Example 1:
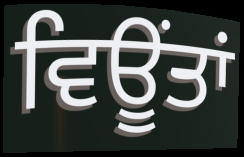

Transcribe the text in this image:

ਵਿਊਂਤਾਂ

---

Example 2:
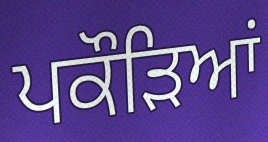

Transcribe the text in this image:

ਪਕੌਡ਼ਿਆਂ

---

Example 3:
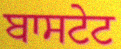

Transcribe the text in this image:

ਬਾਸਟੇਟ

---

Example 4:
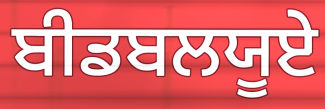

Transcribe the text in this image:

ਬੀਡਬਲਯੂਏ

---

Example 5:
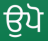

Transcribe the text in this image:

ਉਪੋ